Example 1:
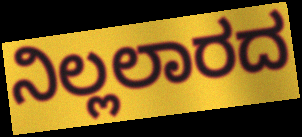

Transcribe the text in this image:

ನಿಲ್ಲಲಾರದ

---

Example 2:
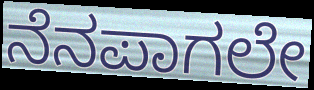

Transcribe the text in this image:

ನೆನಪಾಗಲೇ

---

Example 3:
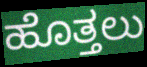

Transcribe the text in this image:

ಹೊತ್ತಲು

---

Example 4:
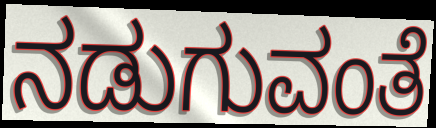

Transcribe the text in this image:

ನಡುಗುವಂತೆ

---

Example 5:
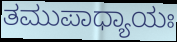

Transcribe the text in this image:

ತಮುಪಾಧ್ಯಾಯಃ